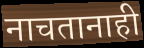
नाचतानाही